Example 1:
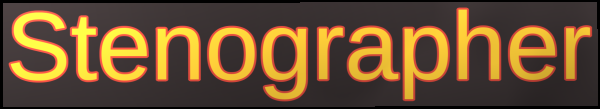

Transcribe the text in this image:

Stenographer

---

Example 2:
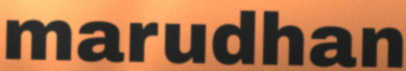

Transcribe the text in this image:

marudhan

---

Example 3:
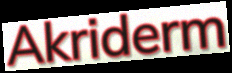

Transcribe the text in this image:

Akriderm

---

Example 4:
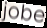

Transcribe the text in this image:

jobe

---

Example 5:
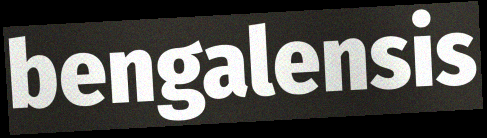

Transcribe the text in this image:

bengalensis